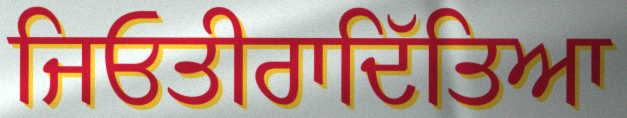
ਜਿਓਤੀਰਾਦਿੱਤਿਆ